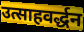
उत्साहवर्द्धन